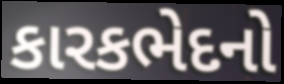
કારકભેદનો